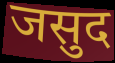
जसुद